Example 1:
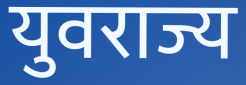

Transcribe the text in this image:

युवराज्य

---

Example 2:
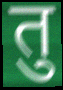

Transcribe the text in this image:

तु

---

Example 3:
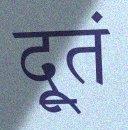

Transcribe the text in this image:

दू॒तं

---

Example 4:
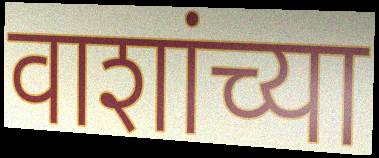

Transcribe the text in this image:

वाशांच्या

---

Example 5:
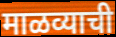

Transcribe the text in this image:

माळव्याची